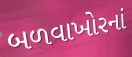
બળવાખોરનાં